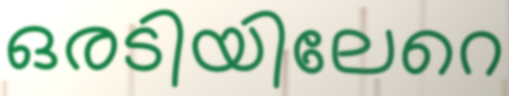
ഒരടിയിലേറെ